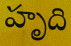
హృది